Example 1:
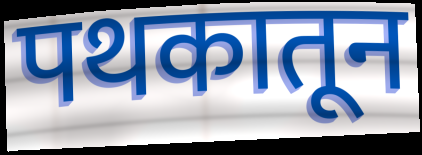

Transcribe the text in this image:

पथकातून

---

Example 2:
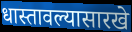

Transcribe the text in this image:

धास्तावल्यासारखे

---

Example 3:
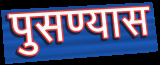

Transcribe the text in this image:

पुसण्यास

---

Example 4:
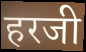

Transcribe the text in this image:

हरजी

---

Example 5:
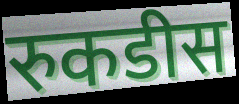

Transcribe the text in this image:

रुकडीस